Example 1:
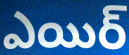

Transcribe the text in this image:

ఎయిర్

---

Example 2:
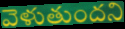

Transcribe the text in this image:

వెళుతుందని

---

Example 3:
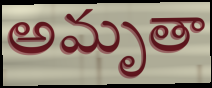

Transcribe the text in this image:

అమృతా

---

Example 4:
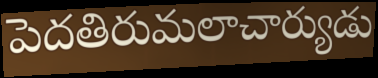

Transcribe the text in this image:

పెదతిరుమలాచార్యుడు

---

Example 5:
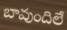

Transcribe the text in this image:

బావుందిలే